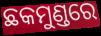
ଛକମୁଣ୍ଡରେ